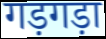
गड़गड़ा